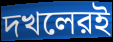
দখলেরই